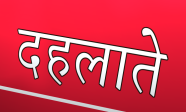
दहलाते